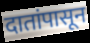
दातांपासून